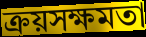
ক্রয়সক্ষমতা